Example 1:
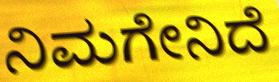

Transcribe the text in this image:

ನಿಮಗೇನಿದೆ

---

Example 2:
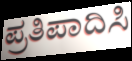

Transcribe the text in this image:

ಪ್ರತಿಪಾದಿಸಿ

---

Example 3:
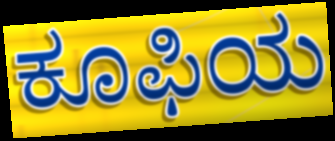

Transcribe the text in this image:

ಕೂಫಿಯ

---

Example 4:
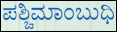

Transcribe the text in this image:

ಪಶ್ಚಿಮಾಂಬುಧಿ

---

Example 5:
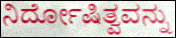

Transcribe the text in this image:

ನಿರ್ದೋಷಿತ್ವವನ್ನು